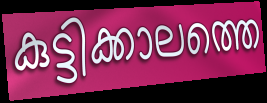
കുട്ടിക്കാലത്തെ